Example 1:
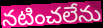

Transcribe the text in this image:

నటించలేను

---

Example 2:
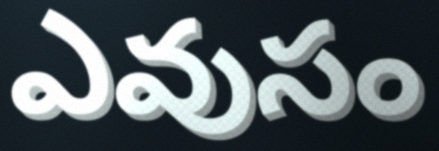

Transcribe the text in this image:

ఎవుసం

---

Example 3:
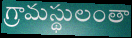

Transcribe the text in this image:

గ్రామస్థులంతా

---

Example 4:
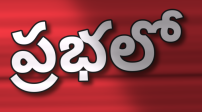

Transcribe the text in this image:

ప్రభలో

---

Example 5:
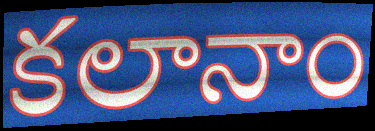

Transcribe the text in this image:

కలానాం